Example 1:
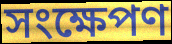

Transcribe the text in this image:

সংক্ষেপণ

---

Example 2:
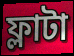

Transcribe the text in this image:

ফ্লাটা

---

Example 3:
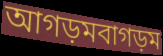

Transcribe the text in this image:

আগড়মবাগড়ম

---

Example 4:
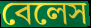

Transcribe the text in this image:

বেলেস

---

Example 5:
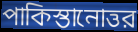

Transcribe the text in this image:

পাকিস্তানোত্তর